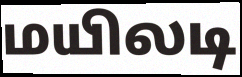
மயிலடி